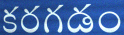
కరగడం